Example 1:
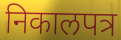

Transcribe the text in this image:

निकालपत्र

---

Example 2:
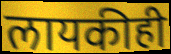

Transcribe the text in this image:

लायकीही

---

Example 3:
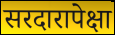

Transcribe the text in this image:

सरदारापेक्षा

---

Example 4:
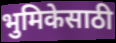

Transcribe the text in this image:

भुमिकेसाठी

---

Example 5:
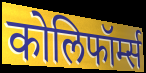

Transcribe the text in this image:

कोलिफॉर्म्स